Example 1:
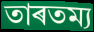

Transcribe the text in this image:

তাৰতম্য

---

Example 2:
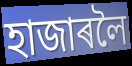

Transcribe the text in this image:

হাজাৰলৈ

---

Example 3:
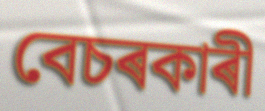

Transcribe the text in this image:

বেচৰকাৰী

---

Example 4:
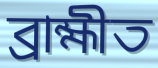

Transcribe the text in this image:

ব্ৰাহ্মীত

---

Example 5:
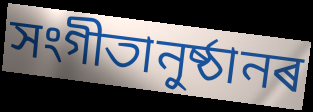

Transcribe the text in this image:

সংগীতানুষ্ঠানৰ